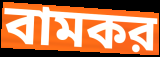
বামকর